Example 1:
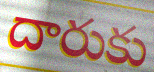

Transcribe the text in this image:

దారుకు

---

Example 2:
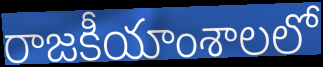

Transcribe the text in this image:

రాజకీయాంశాలలో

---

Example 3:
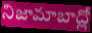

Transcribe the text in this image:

నిజామాబాద్లో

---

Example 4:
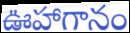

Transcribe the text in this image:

ఊహాగానం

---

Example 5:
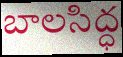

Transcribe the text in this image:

బాలసిద్ధ